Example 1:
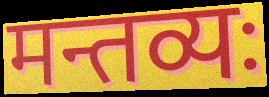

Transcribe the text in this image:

मन्तव्यः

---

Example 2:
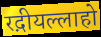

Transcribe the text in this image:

रद़ीयल्लाहो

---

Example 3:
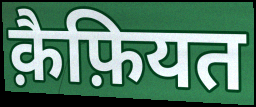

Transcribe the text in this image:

क़ैफ़ियत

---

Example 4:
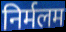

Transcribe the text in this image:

निर्मलम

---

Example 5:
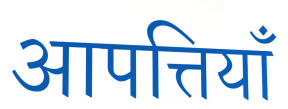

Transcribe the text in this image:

आपत्तियॉं